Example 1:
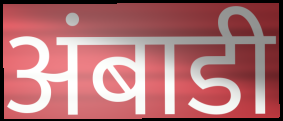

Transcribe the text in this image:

अंबाडी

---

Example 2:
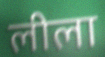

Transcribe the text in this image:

लीला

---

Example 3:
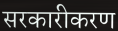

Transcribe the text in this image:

सरकारीकरण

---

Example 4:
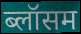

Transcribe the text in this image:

ब्लॉसम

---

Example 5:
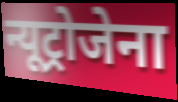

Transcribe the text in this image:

न्यूट्रोजेना